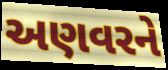
અણવરને